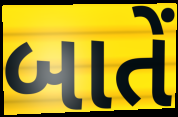
બાતેં